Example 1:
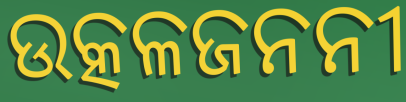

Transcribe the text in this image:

ଉତ୍କଳଜନନୀ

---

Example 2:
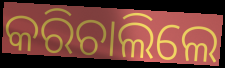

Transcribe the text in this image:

କରିଚାଲିଲେ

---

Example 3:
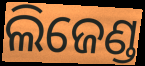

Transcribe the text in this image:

ଲିଜେଣ୍ଡ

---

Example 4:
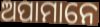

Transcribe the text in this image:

ଅପାମାନେ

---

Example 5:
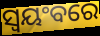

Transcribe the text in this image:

ସ୍ଵୟଂବରେ